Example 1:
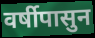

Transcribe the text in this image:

वर्षीपासुन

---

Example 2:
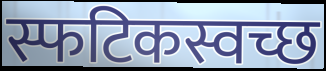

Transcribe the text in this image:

स्फटिकस्वच्छ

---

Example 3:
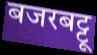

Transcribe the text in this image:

बजरबट्टू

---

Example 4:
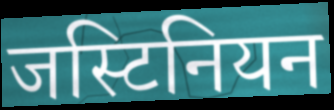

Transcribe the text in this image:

जस्टिनियन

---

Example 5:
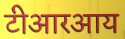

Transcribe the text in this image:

टीआरआय